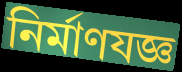
নির্মাণযজ্ঞ